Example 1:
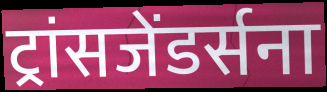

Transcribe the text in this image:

ट्रांसजेंडर्सना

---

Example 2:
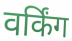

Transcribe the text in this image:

वर्किंग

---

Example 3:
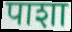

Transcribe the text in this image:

पाशा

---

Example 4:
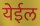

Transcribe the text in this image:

येईल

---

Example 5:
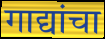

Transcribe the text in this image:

गाद्यांचा